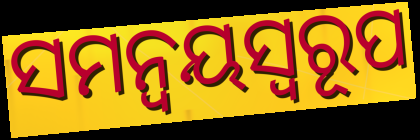
ସମନ୍ୱୟସ୍ୱରୂପ